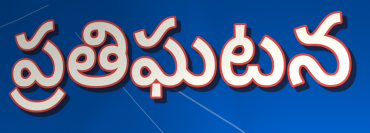
ప్రతిఘటన